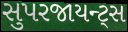
સુપરજાયન્ટ્સ